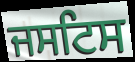
ਜਸਟਿਸ